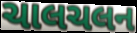
ચાલચલન